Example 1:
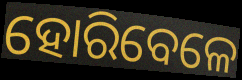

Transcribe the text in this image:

ହୋରିବେଳେ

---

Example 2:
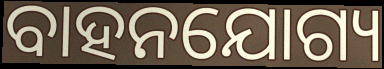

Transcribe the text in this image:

ବାହନଯୋଗ୍ୟ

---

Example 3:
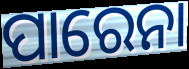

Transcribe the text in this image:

ପାରେନା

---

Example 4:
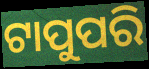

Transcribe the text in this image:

ଟାପୁପରି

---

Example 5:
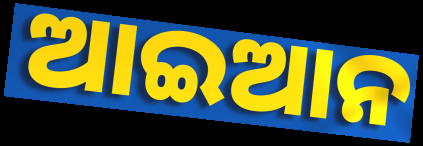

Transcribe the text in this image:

ଆଇଆନ